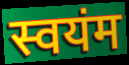
स्वयंम